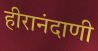
हीरानंदाणी